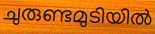
ചുരുണ്ടമുടിയിൽ